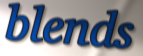
blends